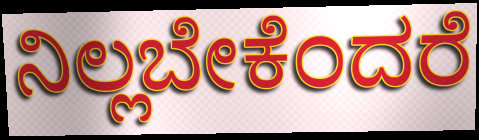
ನಿಲ್ಲಬೇಕೆಂದರೆ